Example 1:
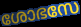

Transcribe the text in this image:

ശോഭസേ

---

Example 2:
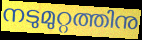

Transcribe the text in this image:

നടുമുറ്റത്തിനു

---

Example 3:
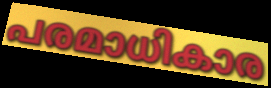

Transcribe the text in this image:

പരമാധികാര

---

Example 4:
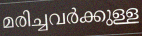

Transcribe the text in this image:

മരിച്ചവർക്കുള്ള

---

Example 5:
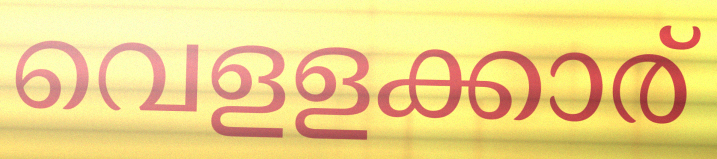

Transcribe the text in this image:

വെളളക്കാര്